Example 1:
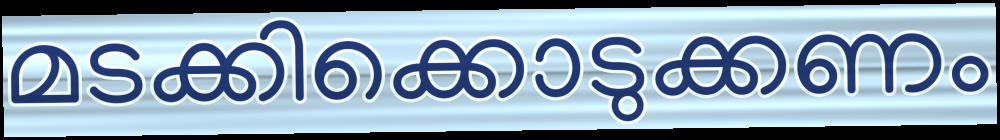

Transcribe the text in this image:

മടക്കിക്കൊടുക്കണം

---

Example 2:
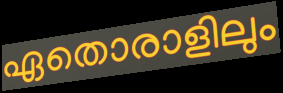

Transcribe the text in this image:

ഏതൊരാളിലും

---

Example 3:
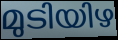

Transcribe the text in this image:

മുടിയിഴ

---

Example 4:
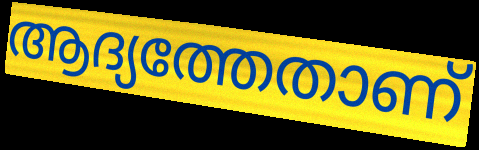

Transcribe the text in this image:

ആദ്യത്തേതാണ്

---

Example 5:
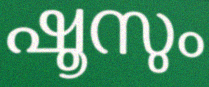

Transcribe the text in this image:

ഷൂസും